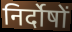
निर्दोषों